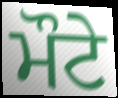
ਮੌਟੇ